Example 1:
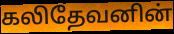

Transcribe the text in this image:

கலிதேவனின்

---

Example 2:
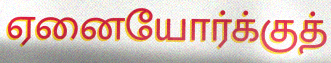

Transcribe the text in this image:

ஏனையோர்க்குத்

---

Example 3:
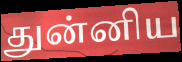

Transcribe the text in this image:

துன்னிய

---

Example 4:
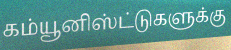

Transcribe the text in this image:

கம்யூனிஸ்ட்டுகளுக்கு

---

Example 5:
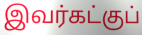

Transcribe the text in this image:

இவர்கட்குப்